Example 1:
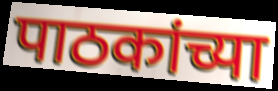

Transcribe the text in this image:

पाठकांच्या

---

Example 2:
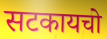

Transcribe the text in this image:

सटकायचो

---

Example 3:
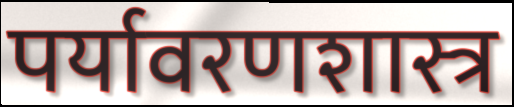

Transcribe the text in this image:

पर्यावरणशास्त्र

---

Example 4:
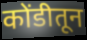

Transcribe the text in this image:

कोंडीतून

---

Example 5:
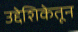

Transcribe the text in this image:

उद्देशिकेतून